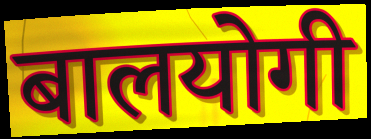
बालयोगी